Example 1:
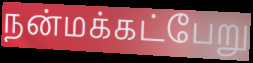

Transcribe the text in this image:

நன்மக்கட்பேறு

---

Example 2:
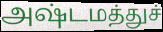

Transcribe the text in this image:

அஷ்டமத்துச்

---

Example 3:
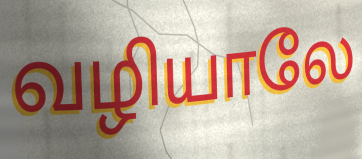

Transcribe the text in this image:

வழியாலே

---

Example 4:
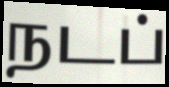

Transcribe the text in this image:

நடப்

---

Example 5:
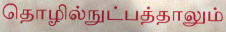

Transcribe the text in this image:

தொழில்நுட்பத்தாலும்